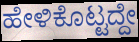
ಹೇಳಿಕೊಟ್ಟದ್ದೇ